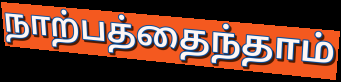
நாற்பத்தைந்தாம்